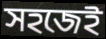
সহজেই